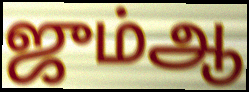
ஜும்ஆ